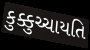
કુક્કુચ્ચાયતિ